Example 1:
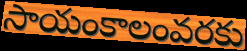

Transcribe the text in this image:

సాయంకాలంవరకు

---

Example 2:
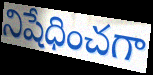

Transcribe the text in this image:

నిషేధించగా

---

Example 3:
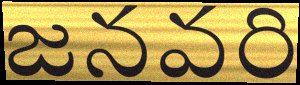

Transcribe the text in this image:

జనవరి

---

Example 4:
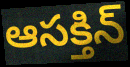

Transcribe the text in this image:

ఆసక్తిన్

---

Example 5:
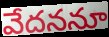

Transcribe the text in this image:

వేదననూ